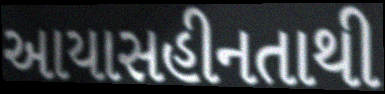
આયાસહીનતાથી